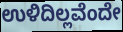
ಉಳಿದಿಲ್ಲವೆಂದೇ